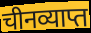
चीनव्याप्त